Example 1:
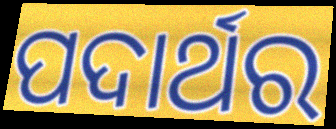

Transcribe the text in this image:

ପଦାର୍ଥର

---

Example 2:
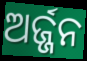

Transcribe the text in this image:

ଅର୍ଜ୍ଜନ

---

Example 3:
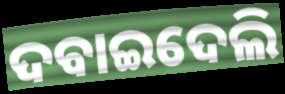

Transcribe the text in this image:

ଦବାଇଦେଲି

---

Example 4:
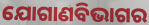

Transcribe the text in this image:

ଯୋଗାଣବିଭାଗର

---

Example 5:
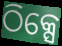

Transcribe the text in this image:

ଠିକ୍ସେ